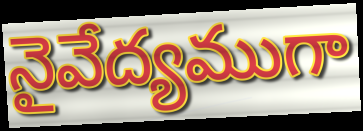
నైవేద్యముగా